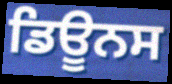
ਡਿਊਨਸ